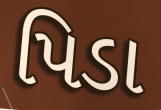
પિડા